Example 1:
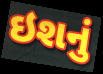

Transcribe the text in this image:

ઇશનું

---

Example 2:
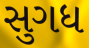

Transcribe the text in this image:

સુગધ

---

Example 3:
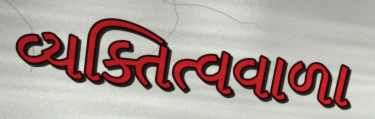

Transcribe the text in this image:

વ્યક્તિત્વવાળા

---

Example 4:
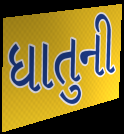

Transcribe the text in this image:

ધાતુની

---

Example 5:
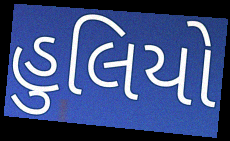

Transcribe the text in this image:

હુલિયો